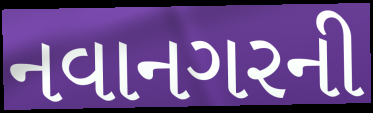
નવાનગરની